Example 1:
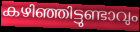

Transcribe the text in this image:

കഴിഞ്ഞിട്ടുണ്ടാവും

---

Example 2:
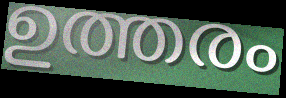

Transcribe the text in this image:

ഉത്തരം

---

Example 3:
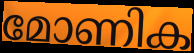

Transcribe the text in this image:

മോണിക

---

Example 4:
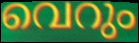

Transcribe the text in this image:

വെറും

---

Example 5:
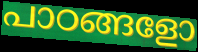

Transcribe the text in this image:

പാഠങ്ങളോ